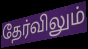
தேர்விலும்